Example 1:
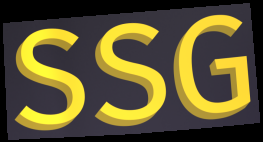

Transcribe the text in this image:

SSG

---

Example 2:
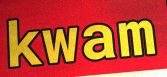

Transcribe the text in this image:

kwam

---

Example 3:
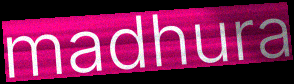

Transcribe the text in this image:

madhura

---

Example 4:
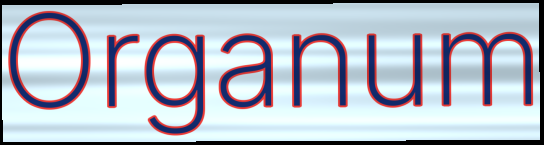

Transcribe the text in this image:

Organum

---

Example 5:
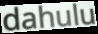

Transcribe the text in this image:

dahulu